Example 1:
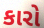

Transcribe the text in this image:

કારો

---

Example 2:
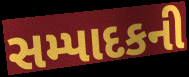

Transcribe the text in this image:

સમ્પાદકની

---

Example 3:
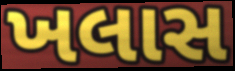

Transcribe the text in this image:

ખલાસ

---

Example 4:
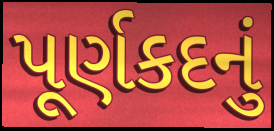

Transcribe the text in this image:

પૂર્ણકદનું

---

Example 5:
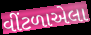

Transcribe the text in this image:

વીંટળાએલા